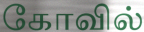
கோவில்